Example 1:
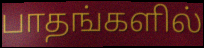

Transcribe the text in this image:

பாதங்களில்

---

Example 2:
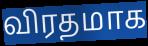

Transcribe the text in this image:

விரதமாக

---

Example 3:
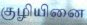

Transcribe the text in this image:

குழியினை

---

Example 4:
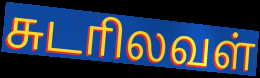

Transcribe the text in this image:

சுடரிலவள்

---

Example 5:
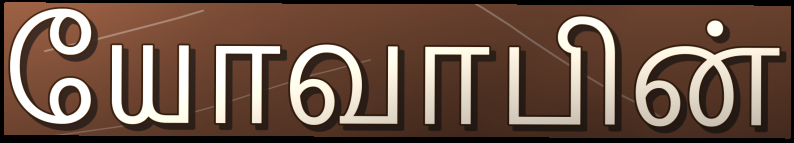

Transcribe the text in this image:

யோவாபின்